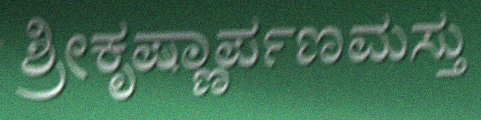
ಶ್ರೀಕೃಷ್ಣಾರ್ಪಣಮಸ್ತು